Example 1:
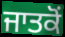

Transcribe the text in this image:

ਜਾਤਕੋਂ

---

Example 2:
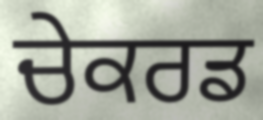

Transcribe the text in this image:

ਚੇਕਰਡ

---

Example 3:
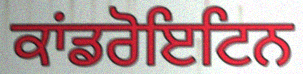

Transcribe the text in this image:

ਕਾਂਡਰੋਇਟਿਨ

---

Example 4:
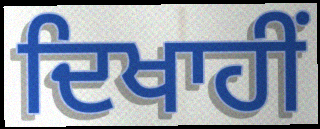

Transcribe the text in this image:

ਦਿਖਾਹੀਂ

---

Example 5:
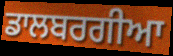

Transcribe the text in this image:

ਡਾਲਬਰਗੀਆ